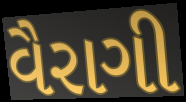
વૈરાગી